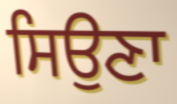
ਸਿਉਣਾ